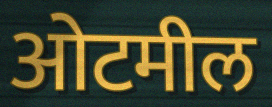
ओटमील